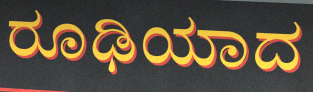
ರೂಢಿಯಾದ